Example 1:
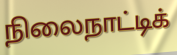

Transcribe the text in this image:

நிலைநாட்டிக்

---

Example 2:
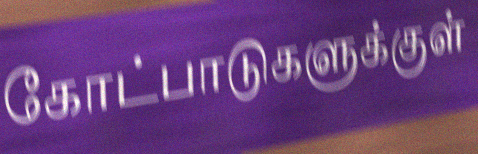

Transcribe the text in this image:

கோட்பாடுகளுக்குள்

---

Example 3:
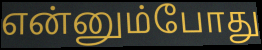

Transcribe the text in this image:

என்னும்போது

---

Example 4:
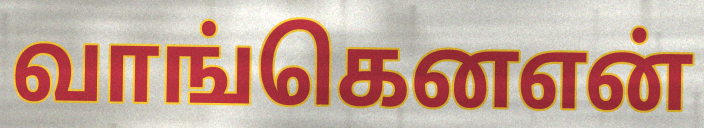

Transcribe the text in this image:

வாங்கெனஎன்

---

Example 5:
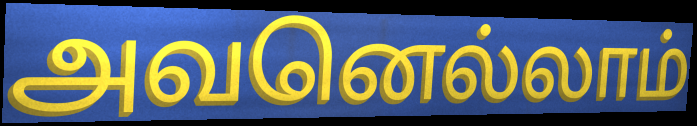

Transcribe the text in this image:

அவனெல்லாம்